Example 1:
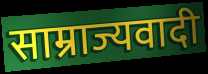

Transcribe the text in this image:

साम्राज्यवादी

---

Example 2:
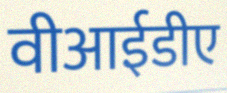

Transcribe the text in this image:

वीआईडीए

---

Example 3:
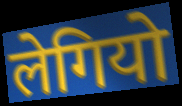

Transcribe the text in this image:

लेगियो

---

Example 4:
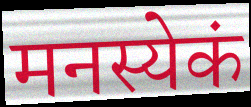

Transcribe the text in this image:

मनस्येकं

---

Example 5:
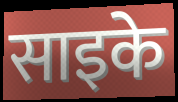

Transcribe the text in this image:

साइके